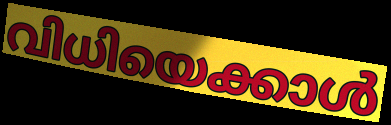
വിധിയെക്കാൾ